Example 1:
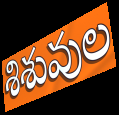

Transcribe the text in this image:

శిశువుల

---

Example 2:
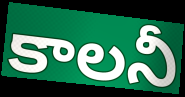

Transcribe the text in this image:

కాలనీ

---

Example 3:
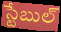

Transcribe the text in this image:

స్టేబుల్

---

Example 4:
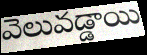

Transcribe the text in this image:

వెలువడ్డాయి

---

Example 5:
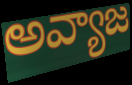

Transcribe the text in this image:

అవ్యాజ